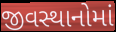
જીવસ્થાનોમાં